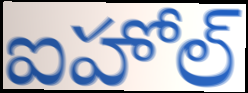
ఐహోల్